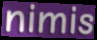
nimis